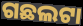
ଗଛଲଟା